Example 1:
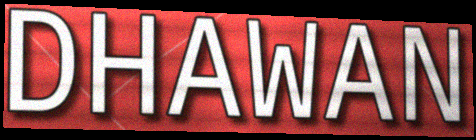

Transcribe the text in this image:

DHAWAN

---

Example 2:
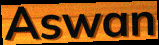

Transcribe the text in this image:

Aswan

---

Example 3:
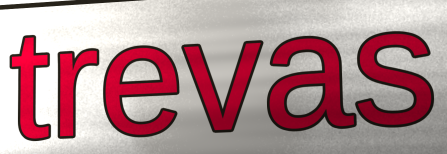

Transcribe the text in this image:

trevas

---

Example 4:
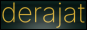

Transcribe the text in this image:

derajat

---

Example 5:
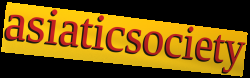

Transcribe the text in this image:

asiaticsociety